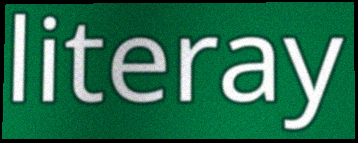
literay